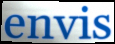
envis